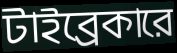
টাইব্রেকারে